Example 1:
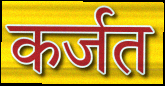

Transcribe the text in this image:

कर्जत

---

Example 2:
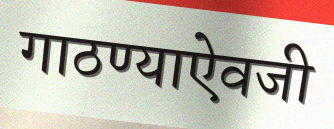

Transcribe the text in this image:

गाठण्याऐवजी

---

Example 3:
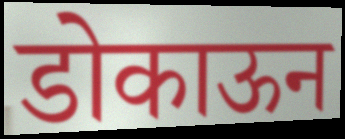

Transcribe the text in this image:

डोकाऊन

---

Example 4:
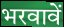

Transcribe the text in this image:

भरवावें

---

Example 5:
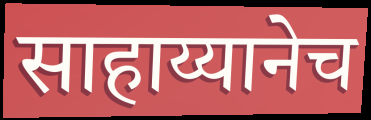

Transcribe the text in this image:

साहाय्यानेच